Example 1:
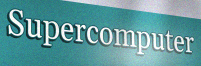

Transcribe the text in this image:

Supercomputer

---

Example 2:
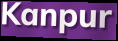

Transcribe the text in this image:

Kanpur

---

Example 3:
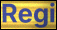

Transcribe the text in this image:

Regi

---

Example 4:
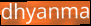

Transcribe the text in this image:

dhyanma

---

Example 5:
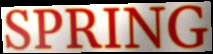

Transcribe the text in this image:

SPRING